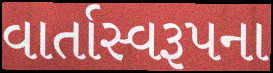
વાર્તાસ્વરૂપના